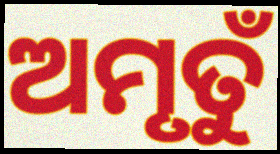
ଅମୃତୁଁ